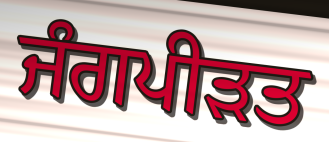
ਜੰਗਪੀੜਤ